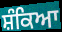
ਸ਼ੰਕਿਆ